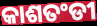
କାଶତଂଡୀ